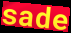
sade